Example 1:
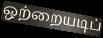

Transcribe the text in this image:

ஒற்றையடிப்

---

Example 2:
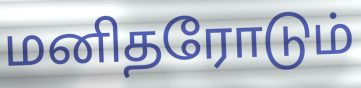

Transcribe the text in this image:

மனிதரோடும்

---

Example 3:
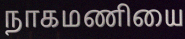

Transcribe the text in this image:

நாகமணியை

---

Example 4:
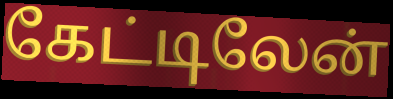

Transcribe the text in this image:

கேட்டிலேன்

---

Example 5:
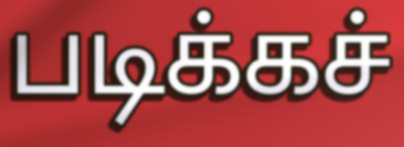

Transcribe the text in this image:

படிக்கச்